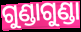
ଗୁଣ୍ଡାଗୁଣ୍ଡା